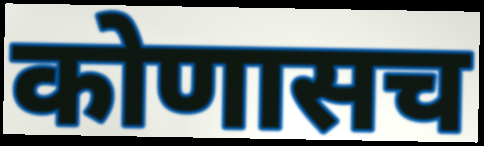
कोणासच